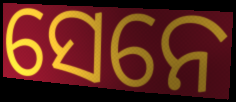
ସେନେ